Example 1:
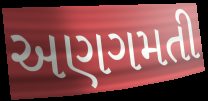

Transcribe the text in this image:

અણગમતી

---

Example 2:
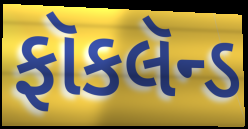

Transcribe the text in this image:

ફૉકલૅન્ડ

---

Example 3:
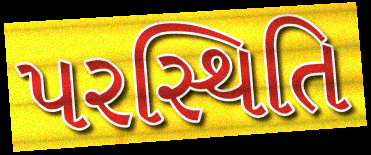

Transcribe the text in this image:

પરસ્થિતિ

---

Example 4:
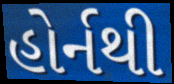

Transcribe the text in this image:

હોર્નથી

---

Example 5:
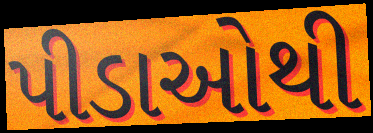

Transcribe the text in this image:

પીડાઓથી